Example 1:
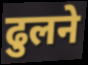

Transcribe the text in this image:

ढुलने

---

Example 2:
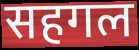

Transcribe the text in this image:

सहगल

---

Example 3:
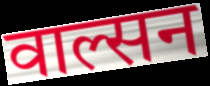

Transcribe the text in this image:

वाल्सन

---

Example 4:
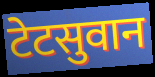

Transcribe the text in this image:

टेटसुवान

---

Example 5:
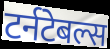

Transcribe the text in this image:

टर्नटेबल्स